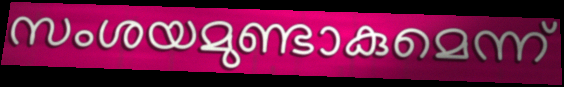
സംശയമുണ്ടാകുമെന്ന്